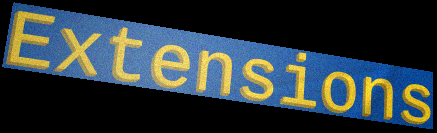
Extensions